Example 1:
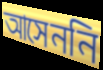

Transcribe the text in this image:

আসেননি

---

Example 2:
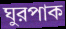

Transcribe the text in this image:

ঘুরপাক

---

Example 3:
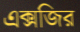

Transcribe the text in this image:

এক্সজির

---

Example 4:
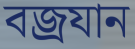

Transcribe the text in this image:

বজ্রযান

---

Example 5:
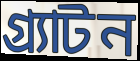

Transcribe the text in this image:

গ্র্যাটন